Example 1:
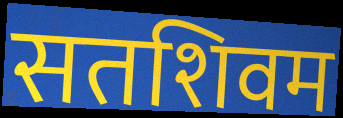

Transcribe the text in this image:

सतशिवम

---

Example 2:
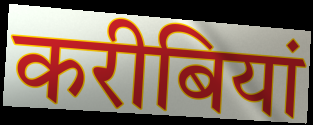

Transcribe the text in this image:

करीबियां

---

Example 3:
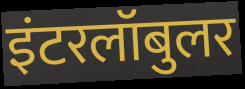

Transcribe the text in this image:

इंटरलॉबुलर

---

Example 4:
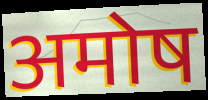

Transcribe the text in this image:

अमोष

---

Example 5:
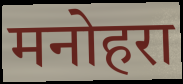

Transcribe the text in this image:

मनोहरा